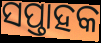
ସପ୍ତାହକ